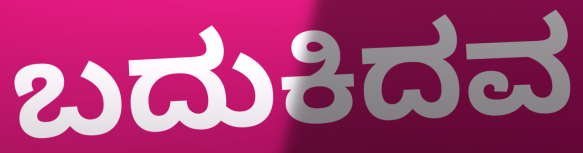
ಬದುಕಿದವ